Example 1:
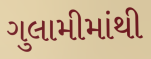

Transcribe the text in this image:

ગુલામીમાંથી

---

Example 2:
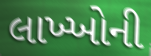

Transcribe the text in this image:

લાખ્ખોની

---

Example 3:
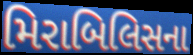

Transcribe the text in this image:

મિરાબિલિસના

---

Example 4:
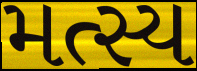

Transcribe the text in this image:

મત્સ્ય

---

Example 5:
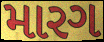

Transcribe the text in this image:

મારગ